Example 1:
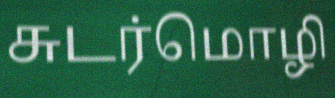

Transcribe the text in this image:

சுடர்மொழி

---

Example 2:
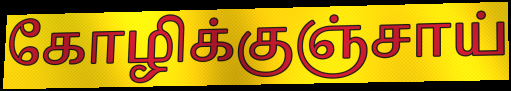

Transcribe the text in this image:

கோழிக்குஞ்சாய்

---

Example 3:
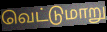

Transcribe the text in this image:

வெட்டுமாறு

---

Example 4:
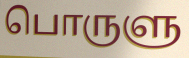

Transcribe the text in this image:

பொருளு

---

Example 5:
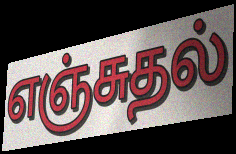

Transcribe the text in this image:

எஞ்சுதல்